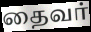
தைவர்